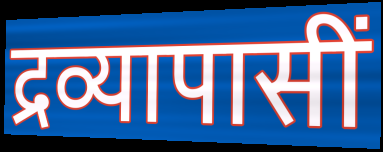
द्रव्यापासीं